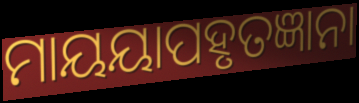
ମାୟୟାପହୃତଜ୍ଞାନା